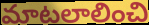
మాటలాలించి